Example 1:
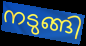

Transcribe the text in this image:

നടുങ്ങി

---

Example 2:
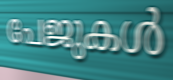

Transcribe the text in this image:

പേജുകൾ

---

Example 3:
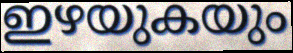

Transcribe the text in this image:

ഇഴയുകയും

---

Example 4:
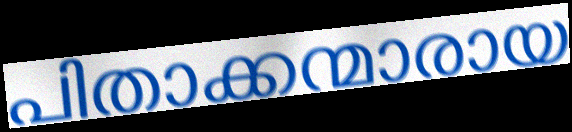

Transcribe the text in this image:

പിതാക്കന്മാരായ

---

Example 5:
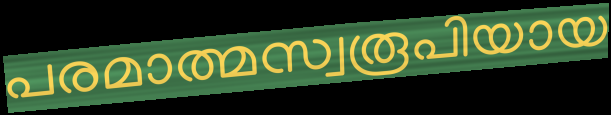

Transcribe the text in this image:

പരമാത്മസ്വരൂപിയായ